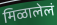
मिळालेलं